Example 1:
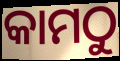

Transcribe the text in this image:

କାମଠୁ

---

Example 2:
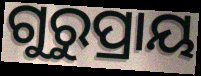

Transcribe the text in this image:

ଗୁରୁପ୍ରାୟ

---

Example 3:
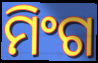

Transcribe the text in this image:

ମିଂଗ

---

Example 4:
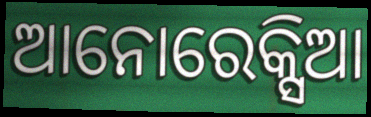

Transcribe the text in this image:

ଆନୋରେକ୍ସିଆ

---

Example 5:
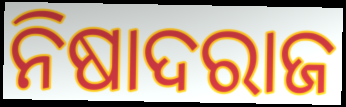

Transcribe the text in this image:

ନିଷାଦରାଜ